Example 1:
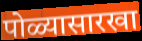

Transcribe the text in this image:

पोळ्यासारखा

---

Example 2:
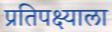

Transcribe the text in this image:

प्रतिपक्ष्याला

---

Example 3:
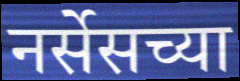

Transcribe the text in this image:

नर्सेसच्या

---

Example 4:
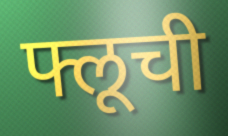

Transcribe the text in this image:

फ्लूची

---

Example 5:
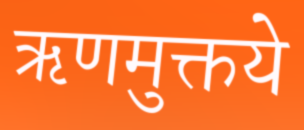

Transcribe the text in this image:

ऋणमुक्तये